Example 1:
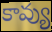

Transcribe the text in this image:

కావ్యు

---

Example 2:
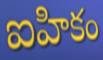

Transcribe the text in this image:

ఐహికం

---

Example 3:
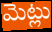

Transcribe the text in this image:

మెట్లు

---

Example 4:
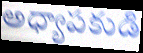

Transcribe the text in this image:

అధ్యాపకుడి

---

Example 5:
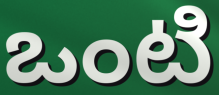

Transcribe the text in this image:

ఒంటి